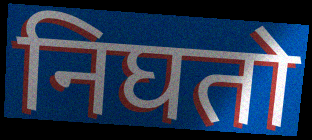
निघतो